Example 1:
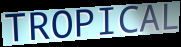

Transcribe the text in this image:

TROPICAL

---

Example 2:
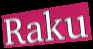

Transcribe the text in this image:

Raku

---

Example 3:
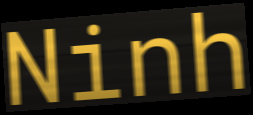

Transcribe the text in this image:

Ninh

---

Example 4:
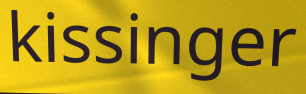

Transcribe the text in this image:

kissinger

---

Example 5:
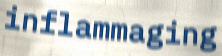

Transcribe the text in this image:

inflammaging